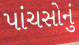
પાંચસોનું